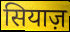
सियाज़